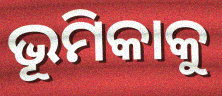
ଭୂମିକାକୁ